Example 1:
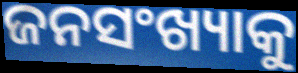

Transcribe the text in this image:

ଜନସଂଖ୍ୟାକୁ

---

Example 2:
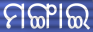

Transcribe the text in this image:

ମଙ୍ଗାଇ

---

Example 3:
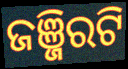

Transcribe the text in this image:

ଜଞ୍ଜିରଟି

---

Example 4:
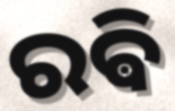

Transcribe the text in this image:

ରଵି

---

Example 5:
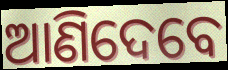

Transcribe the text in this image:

ଆଣିଦେବେ